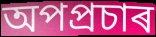
অপপ্ৰচাৰ